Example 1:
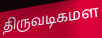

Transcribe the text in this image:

திருவடிகமள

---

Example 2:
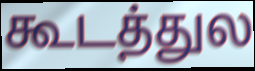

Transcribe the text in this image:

கூடத்துல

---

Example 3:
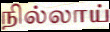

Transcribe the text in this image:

நில்லாய்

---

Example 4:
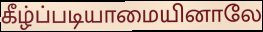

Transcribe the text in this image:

கீழ்ப்படியாமையினாலே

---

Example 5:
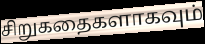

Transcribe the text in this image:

சிறுகதைகளாகவும்